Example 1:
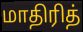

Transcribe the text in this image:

மாதிரித்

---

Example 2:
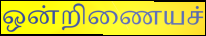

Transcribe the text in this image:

ஒன்றிணையச்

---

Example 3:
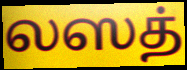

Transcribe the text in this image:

லஸத்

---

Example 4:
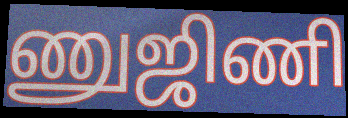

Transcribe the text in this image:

ணுஜிணி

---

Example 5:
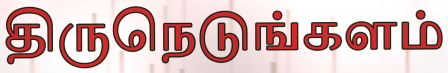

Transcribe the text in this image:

திருநெடுங்களம்